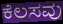
ಕೆಲಸವು